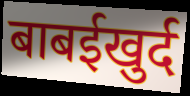
बाबईखुर्द